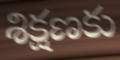
శిక్షణకు